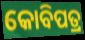
କୋବିପତ୍ର